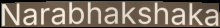
Narabhakshaka